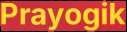
Prayogik